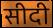
सीदी